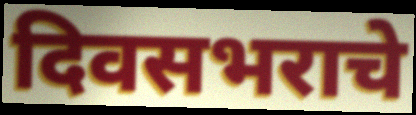
दिवसभराचे